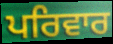
ਪਰਿਵਾਰ